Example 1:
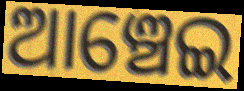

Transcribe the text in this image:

ଆଞ୍ଚେଇ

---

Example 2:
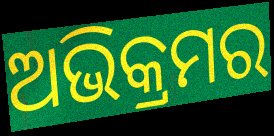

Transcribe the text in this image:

ଅଭିକ୍ରମର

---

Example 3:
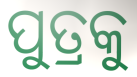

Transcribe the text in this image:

ପୁତ୍ରକୁ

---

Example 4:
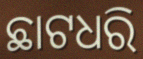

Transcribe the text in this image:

ଛାଟଧରି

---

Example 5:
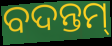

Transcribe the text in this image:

ବଦନ୍ତମ୍